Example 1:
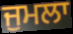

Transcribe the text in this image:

ਜੁਮਲਾ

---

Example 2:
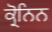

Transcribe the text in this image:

ਕ੍ਰੋਨਿਨ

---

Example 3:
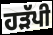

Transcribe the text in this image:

ਹੜੱਪੀ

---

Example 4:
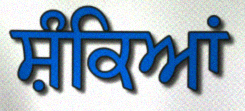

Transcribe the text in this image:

ਸ਼ੰਕਿਆਂ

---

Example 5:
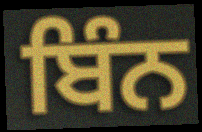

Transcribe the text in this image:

ਬਿੰਨ